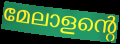
മേലാളന്റെ